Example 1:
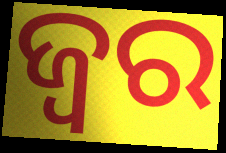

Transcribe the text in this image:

ଜ୍ଵର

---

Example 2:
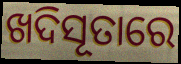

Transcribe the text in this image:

ଖଦିସୂତାରେ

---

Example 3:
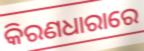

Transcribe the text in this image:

କିରଣଧାରାରେ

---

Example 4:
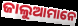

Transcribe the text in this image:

ଜାଲୁଆମାନେ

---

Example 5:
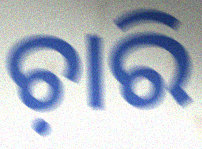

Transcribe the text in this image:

ଚ଼ାରି